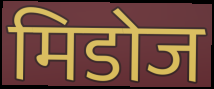
मिडोज